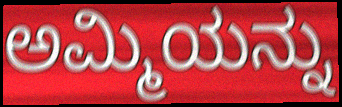
ಅಮ್ಮಿಯನ್ನು